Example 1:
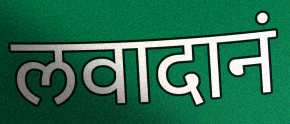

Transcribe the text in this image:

लवादानं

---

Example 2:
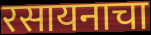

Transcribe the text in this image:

रसायनाचा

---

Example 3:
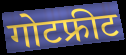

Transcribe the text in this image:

गोटफ्रीट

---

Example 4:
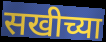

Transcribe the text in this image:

सखीच्या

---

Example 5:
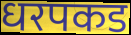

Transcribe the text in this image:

धरपकड